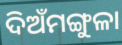
ଦିଅଁମଙ୍ଗୁଳା